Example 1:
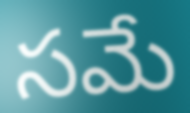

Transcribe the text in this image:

సమే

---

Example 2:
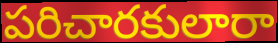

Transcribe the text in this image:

పరిచారకులారా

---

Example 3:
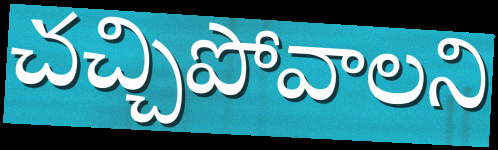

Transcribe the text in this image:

చచ్చిపోవాలని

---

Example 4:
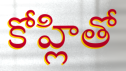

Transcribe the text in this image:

కోహ్లితో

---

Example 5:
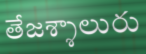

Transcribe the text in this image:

తేజశ్శాలురు